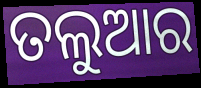
ତଲୁଆର